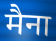
मैना